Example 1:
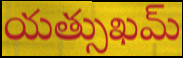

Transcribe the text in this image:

యత్సుఖమ్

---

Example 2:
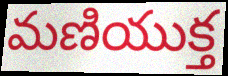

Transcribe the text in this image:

మణియుక్త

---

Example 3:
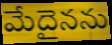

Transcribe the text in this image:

మేదైనను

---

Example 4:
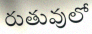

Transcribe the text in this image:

రుతువులో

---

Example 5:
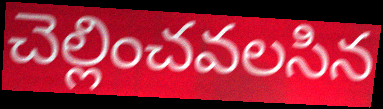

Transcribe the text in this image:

చెల్లించవలసిన